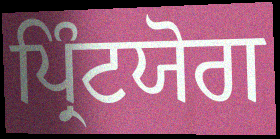
ਪ੍ਰਿੰਟਯੋਗ